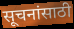
सूचनांसाठी